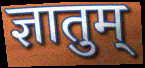
ज्ञातुम्